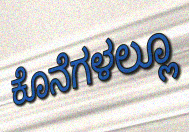
ಕೊನೆಗಳಲ್ಲೂ